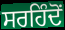
ਸਰਹਿੰਦੋਂ